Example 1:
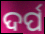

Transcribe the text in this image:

ଦର୍ପ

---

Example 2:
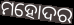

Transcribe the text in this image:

ମହୋଦର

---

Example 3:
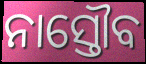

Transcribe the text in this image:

ନାସ୍ତୌବ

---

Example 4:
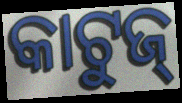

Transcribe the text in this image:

କାଟୁଜ୍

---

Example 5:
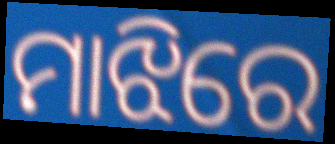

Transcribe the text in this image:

ମାଝିରେ